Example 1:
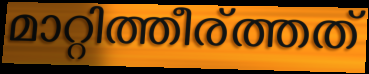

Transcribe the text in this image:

മാറ്റിത്തീര്ത്തത്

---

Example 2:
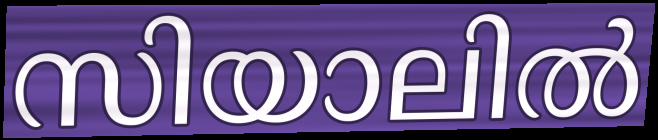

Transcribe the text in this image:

സിയാലിൽ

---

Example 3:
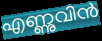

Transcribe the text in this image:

എണ്ണുവിൻ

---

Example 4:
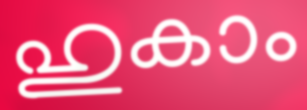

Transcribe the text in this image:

ഹുകാം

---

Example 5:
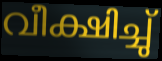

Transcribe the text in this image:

വീക്ഷിച്ചു്